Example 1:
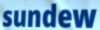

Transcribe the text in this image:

sundew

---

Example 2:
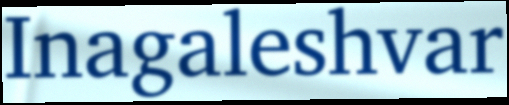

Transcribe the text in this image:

Inagaleshvar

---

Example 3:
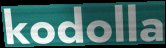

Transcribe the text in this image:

kodolla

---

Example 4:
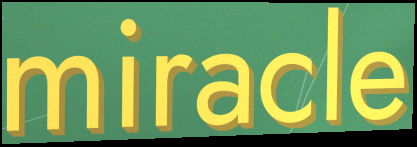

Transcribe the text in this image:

miracle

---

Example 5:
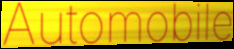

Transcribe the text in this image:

Automobile